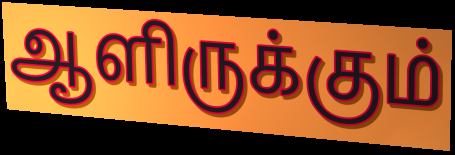
ஆளிருக்கும்